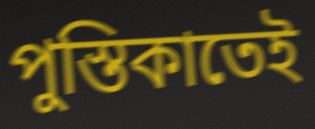
পুস্তিকাতেই